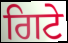
ਗਿਟੇ